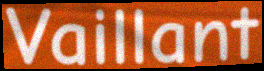
Vaillant